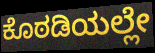
ಕೊಠಡಿಯಲ್ಲೇ